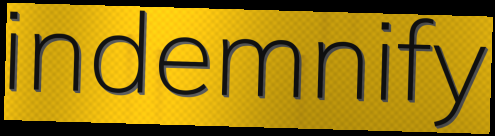
indemnify